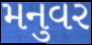
મનુવર